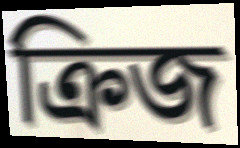
ক্রিজ